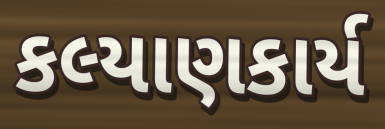
કલ્યાણકાર્ય